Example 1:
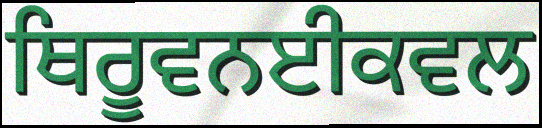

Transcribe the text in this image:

ਥਿਰੂਵਨਈਕਵਲ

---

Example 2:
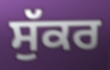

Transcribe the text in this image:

ਸੁੱਕਰ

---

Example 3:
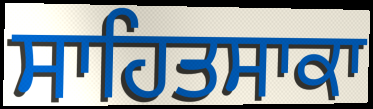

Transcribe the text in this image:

ਸਾਹਿਤਸਾਕਾ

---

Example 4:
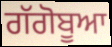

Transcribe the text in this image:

ਗੱਗੋਬੂਆ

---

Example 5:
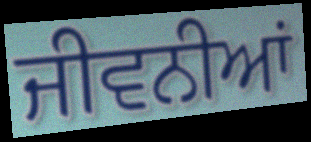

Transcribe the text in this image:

ਜੀਵਨੀਆਂ